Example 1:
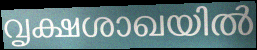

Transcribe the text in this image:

വൃക്ഷശാഖയിൽ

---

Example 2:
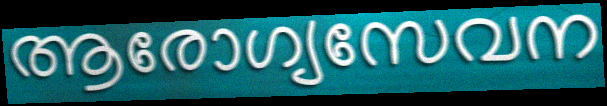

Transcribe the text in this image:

ആരോഗ്യസേവന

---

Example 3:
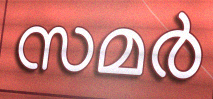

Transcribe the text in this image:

സമർ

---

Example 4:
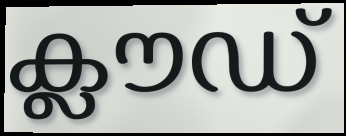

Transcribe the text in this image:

ക്ലൗഡ്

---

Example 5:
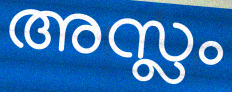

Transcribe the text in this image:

അസ്ലം